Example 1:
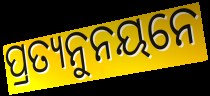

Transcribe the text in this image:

ପ୍ରତ୍ୟନୁନୟନେ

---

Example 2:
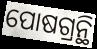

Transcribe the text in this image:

ପୋଷଗ୍ରନ୍ଥି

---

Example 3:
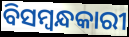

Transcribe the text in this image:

ବିସମ୍ବନ୍ଧକାରୀ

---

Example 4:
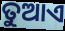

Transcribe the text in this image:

ତୁଆଏ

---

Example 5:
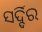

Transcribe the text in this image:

ସର୍ଦ୍ଦିର